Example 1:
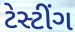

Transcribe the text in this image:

ટેસ્ટીંગ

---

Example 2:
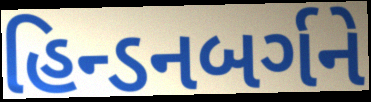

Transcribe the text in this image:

હિન્ડનબર્ગને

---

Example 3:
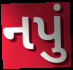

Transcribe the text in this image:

નપું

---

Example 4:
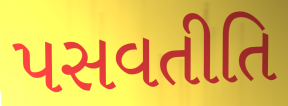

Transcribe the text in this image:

પસવતીતિ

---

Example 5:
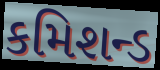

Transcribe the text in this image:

કમિશન્ડ